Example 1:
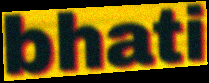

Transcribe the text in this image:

bhati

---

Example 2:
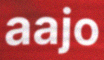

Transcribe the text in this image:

aajo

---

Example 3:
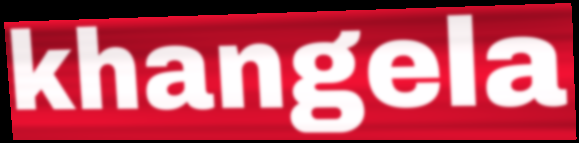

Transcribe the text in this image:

khangela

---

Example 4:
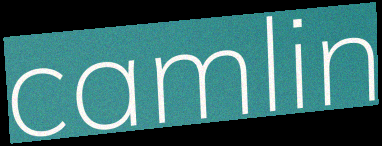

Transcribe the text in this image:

camlin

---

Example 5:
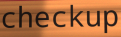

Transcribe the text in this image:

checkup